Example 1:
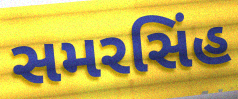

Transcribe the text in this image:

સમરસિંહ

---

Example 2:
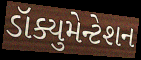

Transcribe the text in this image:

ડૉક્યુમેન્ટેશન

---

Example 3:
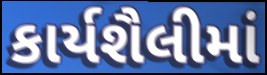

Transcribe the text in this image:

કાર્યશૈલીમાં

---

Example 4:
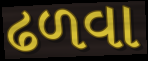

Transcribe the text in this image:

ઢળવા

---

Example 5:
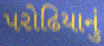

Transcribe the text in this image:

પરોઢિયાનું